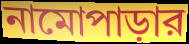
নামোপাড়ার